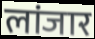
लांजार